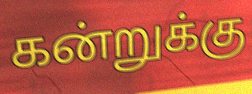
கன்றுக்கு